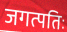
जगत्पतिः